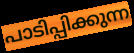
പാടിപ്പിക്കുന്ന